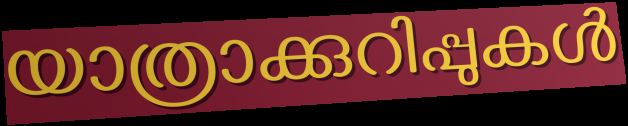
യാത്രാക്കുറിപ്പുകൾ